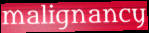
malignancy